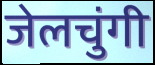
जेलचुंगी